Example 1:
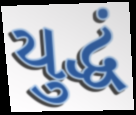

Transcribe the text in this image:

યુદ્ધં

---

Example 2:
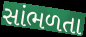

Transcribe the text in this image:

સાંભળતા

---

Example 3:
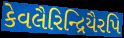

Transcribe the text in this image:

કેવલૈરિન્દ્રિયૈરપિ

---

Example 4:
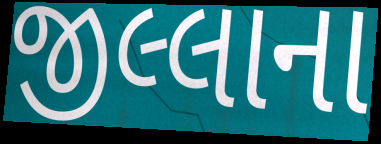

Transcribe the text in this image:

જીલ્લાના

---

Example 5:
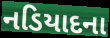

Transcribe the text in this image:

નડિયાદના